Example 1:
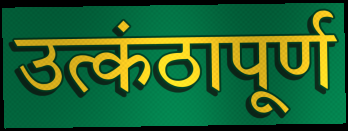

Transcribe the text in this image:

उत्कंठापूर्ण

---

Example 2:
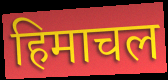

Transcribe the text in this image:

हिमाचल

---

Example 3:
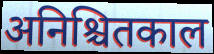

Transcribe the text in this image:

अनिश्चितकाल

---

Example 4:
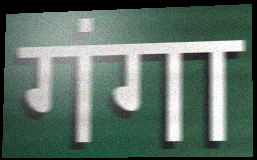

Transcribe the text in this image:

गंगा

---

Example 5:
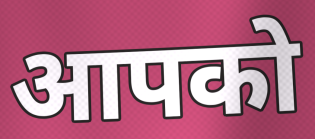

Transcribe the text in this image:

आपको